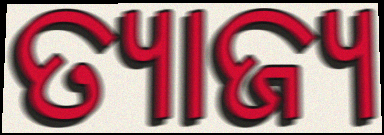
ତ୍ୟାଜ୍ୟ